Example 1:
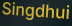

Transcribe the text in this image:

Singdhui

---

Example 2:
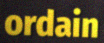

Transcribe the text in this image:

ordain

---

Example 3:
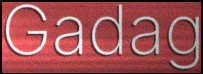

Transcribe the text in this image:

Gadag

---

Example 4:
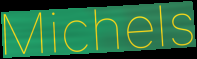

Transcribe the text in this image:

Michels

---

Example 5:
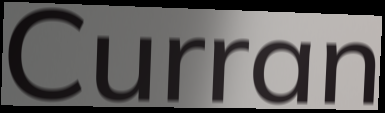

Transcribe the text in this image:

Curran